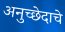
अनुच्छेदाचे